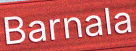
Barnala